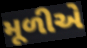
મૂળીએ